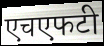
एचएफटी